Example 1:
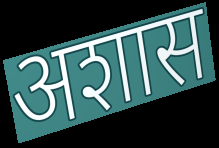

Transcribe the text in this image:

अशास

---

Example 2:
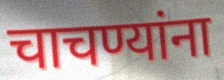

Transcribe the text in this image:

चाचण्यांना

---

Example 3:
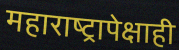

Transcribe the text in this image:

महाराष्ट्रापेक्षाही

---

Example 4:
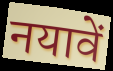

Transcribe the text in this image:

नयावें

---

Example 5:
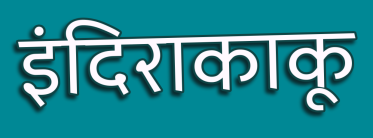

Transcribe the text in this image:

इंदिराकाकू